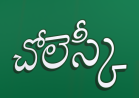
చోలెస్కీ